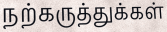
நற்கருத்துக்கள்